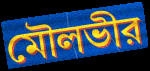
মৌলভীর